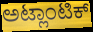
ಅಟ್ಲಾಂಟಿಕ್